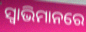
ସ୍ୱାଭିମାନରେ